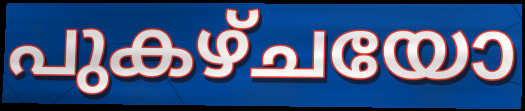
പുകഴ്ചയോ